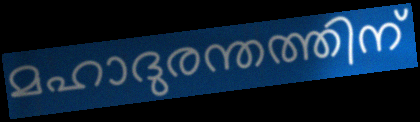
മഹാദുരന്തത്തിന്